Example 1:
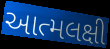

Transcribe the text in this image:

આત્મલક્ષી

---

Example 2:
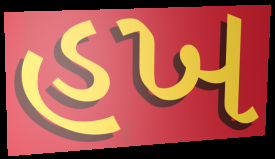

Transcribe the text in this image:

હખ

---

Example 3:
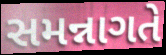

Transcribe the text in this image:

સમન્નાગતે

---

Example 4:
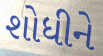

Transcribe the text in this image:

શોધીને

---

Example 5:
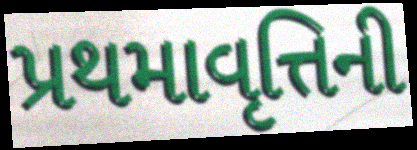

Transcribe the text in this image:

પ્રથમાવૃત્તિની